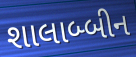
શાલાબ્બીન